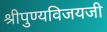
श्रीपुण्यविजयजी